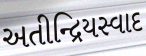
અતીન્દ્રિયસ્વાદ